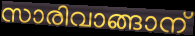
സാരിവാങ്ങാന്